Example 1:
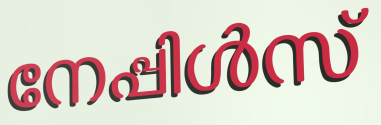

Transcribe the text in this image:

നേപ്പിൾസ്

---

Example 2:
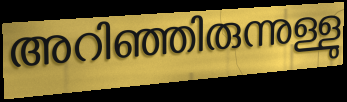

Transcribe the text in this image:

അറിഞ്ഞിരുന്നുള്ളു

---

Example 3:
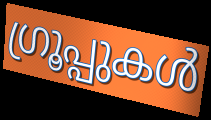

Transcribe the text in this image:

ഗ്രൂപ്പുകൾ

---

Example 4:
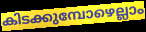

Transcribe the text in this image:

കിടക്കുമ്പോഴെല്ലാം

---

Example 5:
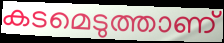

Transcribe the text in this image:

കടമെടുത്താണ്